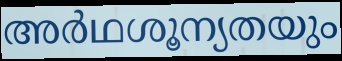
അർഥശൂന്യതയും